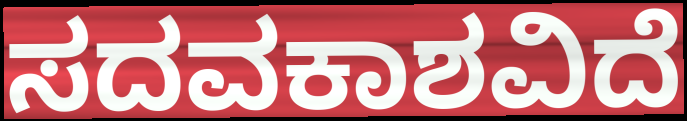
ಸದವಕಾಶವಿದೆ